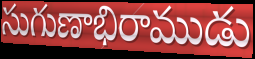
సుగుణాభిరాముడు